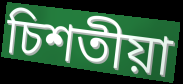
চিশতীয়া